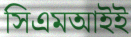
সিএমআইই